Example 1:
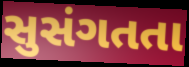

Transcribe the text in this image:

સુસંગતતા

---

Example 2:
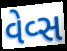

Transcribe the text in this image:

વેવ્સ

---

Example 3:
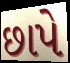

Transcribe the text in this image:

છાપે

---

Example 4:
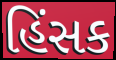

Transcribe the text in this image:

હિંસક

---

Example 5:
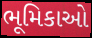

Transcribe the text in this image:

ભૂમિકાઓ